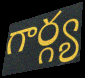
గార్గ్య